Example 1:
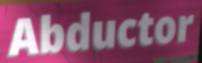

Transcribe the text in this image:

Abductor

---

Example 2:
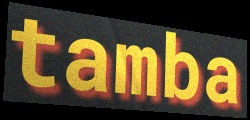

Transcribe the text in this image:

tamba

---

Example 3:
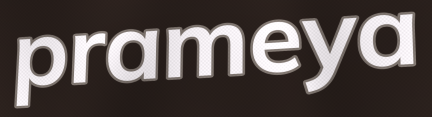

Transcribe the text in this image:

prameya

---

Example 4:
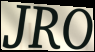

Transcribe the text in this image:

JRO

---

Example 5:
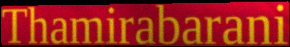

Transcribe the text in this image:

Thamirabarani